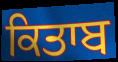
ਕਿਤਾਬ